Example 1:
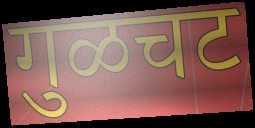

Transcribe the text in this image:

गुळचट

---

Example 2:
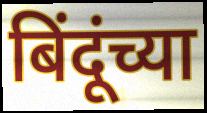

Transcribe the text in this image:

बिंदूंच्या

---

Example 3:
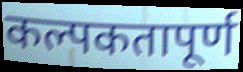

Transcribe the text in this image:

कल्पकतापूर्ण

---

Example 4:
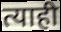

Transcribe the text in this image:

त्याही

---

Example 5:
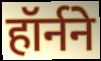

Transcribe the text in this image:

हॉर्नने